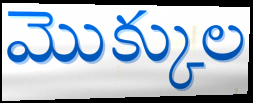
మొక్కుల